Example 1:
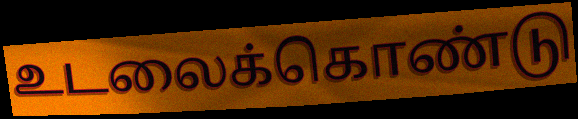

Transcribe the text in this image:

உடலைக்கொண்டு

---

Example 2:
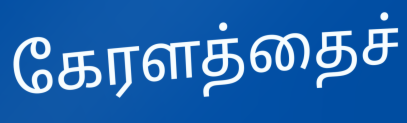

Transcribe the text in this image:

கேரளத்தைச்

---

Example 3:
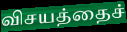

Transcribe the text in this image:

விசயத்தைச்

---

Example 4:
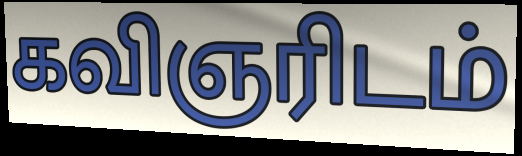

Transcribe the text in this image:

கவிஞரிடம்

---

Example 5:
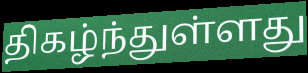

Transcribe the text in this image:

திகழ்ந்துள்ளது